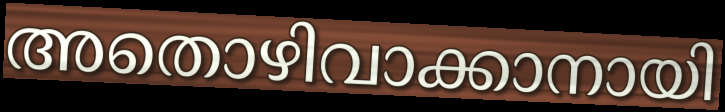
അതൊഴിവാക്കാനായി